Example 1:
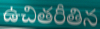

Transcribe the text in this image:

ఉచితరీతిన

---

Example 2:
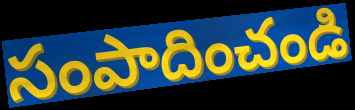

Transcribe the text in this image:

సంపాదించండి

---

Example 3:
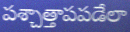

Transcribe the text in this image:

పశ్చాత్తాపపడేలా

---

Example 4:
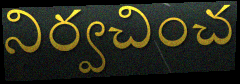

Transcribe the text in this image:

నిర్వచించ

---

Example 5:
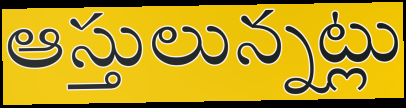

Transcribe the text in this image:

ఆస్తులున్నట్లు